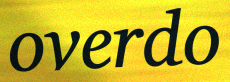
overdo